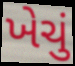
ખેચું